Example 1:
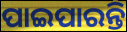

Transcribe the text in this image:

ପାଇପାରନ୍ତି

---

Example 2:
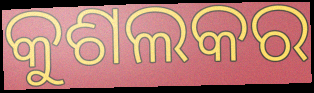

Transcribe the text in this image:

କୁଶଲକର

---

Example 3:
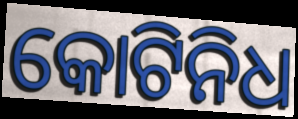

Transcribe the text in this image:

କୋଟିନିଧ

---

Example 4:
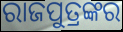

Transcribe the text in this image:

ରାଜପୁତ୍ରଙ୍କର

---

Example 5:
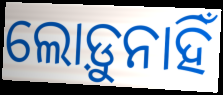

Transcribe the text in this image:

ଲୋଡ଼ୁନାହିଁ